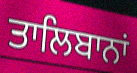
ਤਾਲਿਬਾਨਾਂ